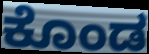
ಕೊಂಡ